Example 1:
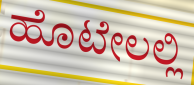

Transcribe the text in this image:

ಹೊಟೇಲಲ್ಲಿ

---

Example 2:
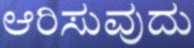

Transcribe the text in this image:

ಆರಿಸುವುದು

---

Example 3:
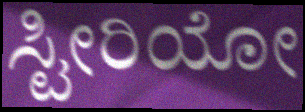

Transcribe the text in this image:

ಸ್ಟೀರಿಯೋ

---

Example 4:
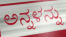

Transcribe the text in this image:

ಅನ್ನಳನ್ನು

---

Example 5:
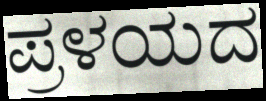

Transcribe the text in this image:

ಪ್ರಳಯದ